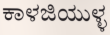
ಕಾಳಜಿಯುಳ್ಳ